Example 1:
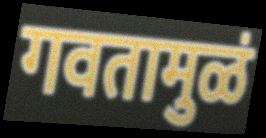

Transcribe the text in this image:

गवतामुळं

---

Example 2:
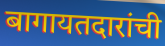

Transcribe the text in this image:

बागायतदारांची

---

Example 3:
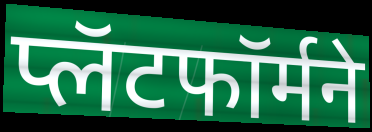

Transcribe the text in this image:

प्लॅटफॉर्मने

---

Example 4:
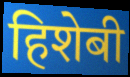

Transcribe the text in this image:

हिशेबी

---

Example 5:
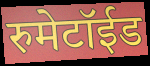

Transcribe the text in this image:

रुमेटॉईड